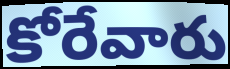
కోరేవారు